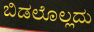
ಬಿಡಲೊಲ್ಲದು